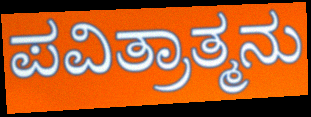
ಪವಿತ್ರಾತ್ಮನು